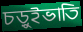
চড়ুইভাতি